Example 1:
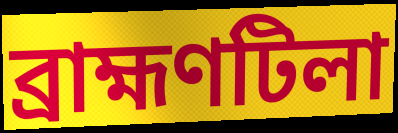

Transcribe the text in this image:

ব্রাহ্মণটিলা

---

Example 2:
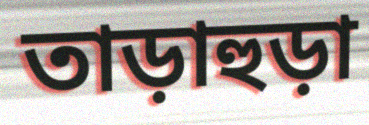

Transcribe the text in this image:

তাড়াহুড়া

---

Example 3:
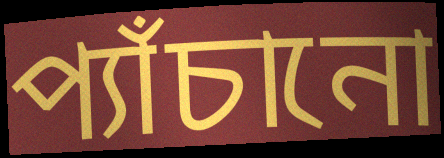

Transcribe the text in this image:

প্যাঁচানো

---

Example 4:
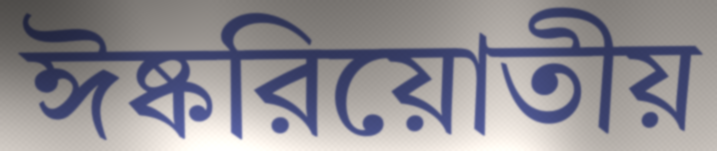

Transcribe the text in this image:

ঈষ্করিয়োতীয়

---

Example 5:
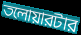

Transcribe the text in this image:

তলোয়ারটার